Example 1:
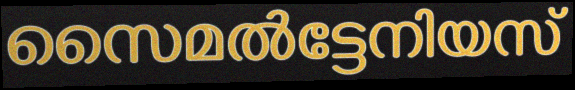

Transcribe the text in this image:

സൈമൽട്ടേനിയസ്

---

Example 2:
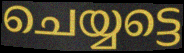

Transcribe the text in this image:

ചെയ്യട്ടെ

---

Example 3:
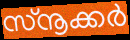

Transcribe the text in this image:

സ്നൂക്കർ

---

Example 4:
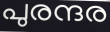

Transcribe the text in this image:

പുരന്ദര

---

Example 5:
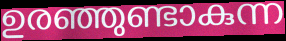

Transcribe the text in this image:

ഉരഞ്ഞുണ്ടാകുന്ന